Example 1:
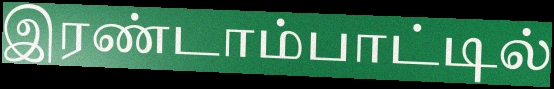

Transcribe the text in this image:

இரண்டாம்பாட்டில்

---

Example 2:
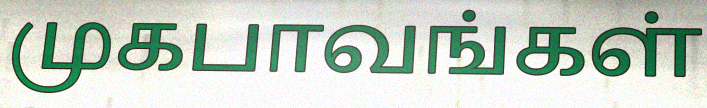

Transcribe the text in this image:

முகபாவங்கள்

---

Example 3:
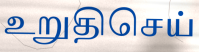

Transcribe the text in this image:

உறுதிசெய்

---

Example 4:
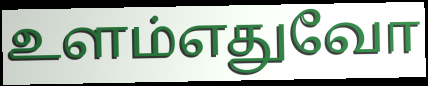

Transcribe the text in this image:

உளம்எதுவோ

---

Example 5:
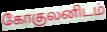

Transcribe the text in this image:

கோகுலனிடம்